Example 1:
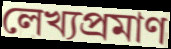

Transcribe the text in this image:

লেখ্যপ্রমাণ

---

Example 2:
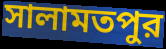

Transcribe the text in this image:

সালামতপুর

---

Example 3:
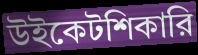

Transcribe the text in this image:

উইকেটশিকারি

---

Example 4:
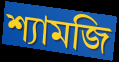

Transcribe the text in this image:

শ্যামজি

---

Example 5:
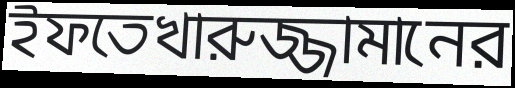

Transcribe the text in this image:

ইফতেখারুজ্জামানের